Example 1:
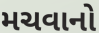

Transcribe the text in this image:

મચવાનો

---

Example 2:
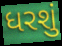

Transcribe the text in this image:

ધરશું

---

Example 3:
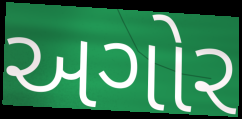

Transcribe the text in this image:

અગોર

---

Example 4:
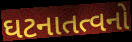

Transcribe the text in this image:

ઘટનાતત્વનો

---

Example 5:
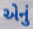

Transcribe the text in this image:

એેનું